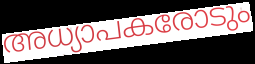
അധ്യാപകരോടും